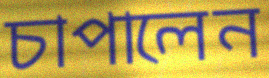
চাপালেন